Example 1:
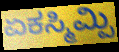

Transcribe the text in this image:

ಏಕಸ್ಮಿಮ್ಪಿ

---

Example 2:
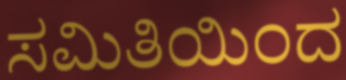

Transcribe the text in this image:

ಸಮಿತಿಯಿಂದ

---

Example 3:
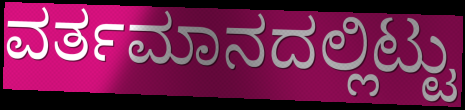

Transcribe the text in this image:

ವರ್ತಮಾನದಲ್ಲಿಟ್ಟು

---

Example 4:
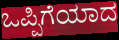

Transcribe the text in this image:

ಒಪ್ಪಿಗೆಯಾದ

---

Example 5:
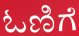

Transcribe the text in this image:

ಓಣಿಗೆ